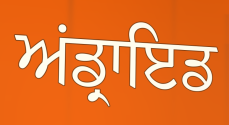
ਅਂਡ੍ਰਾਇਡ